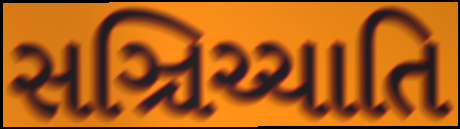
સઞ્ચિચ્ચાતિ